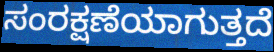
ಸಂರಕ್ಷಣೆಯಾಗುತ್ತದೆ